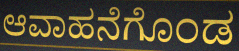
ಆವಾಹನೆಗೊಂಡ